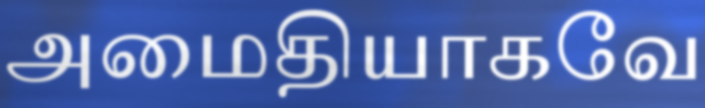
அமைதியாகவே